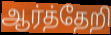
ஆர்த்தேறி